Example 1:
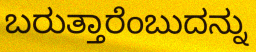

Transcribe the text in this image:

ಬರುತ್ತಾರೆಂಬುದನ್ನು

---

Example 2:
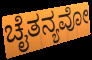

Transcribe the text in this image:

ಚೈತನ್ಯವೋ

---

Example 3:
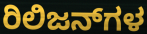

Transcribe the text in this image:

ರಿಲಿಜನ್‌ಗಳ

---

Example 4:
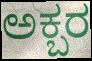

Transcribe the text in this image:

ಅಕ್ಬರ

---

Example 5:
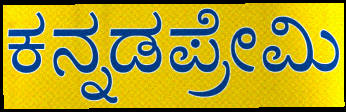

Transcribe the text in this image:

ಕನ್ನಡಪ್ರೇಮಿ